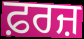
ਫ਼ਰਜ਼